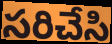
సరిచేసి